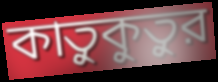
কাতুকুতুর